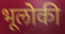
भूलोकी